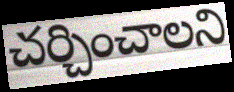
చర్చించాలని